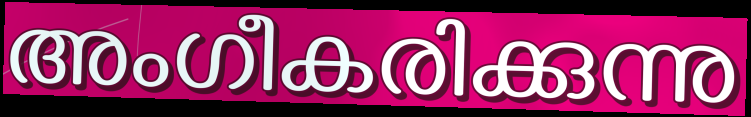
അംഗീകരിക്കുന്നു